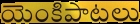
యెంకిపాటలు